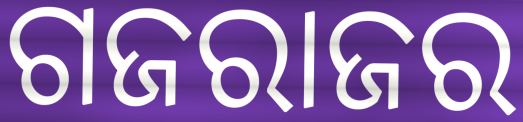
ଗଜରାଜର